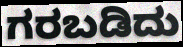
ಗರಬಡಿದು